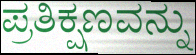
ಪ್ರತಿಕ್ಷಣವನ್ನು